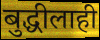
बुद्धीलाही